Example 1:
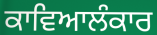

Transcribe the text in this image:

ਕਾਵਿਆਲੰਕਾਰ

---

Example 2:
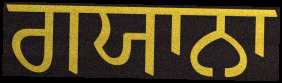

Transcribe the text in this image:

ਗਯਾਨਾ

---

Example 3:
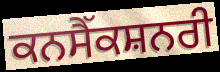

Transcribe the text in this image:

ਕਨਸੈੱਕਸ਼ਨਰੀ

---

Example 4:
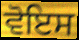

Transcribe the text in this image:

ਵੋਇਸ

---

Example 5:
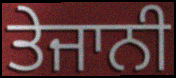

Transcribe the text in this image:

ਤੇਜਾਨੀ